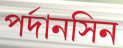
পর্দানসিন